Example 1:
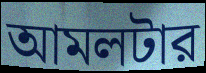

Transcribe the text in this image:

আমলটার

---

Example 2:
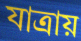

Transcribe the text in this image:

যাত্রায়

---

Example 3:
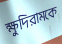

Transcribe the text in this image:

ক্ষুদিরামকে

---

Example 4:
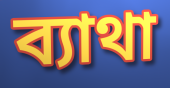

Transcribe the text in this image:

ব্যাথা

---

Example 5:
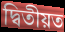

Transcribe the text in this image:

দ্বিতীয়ত